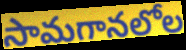
సామగానలోల